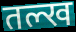
तल्ख